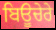
ਬਿਊਚੇਰੇ